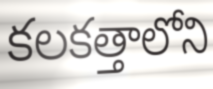
కలకత్తాలోని